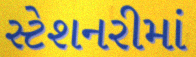
સ્ટેશનરીમાં